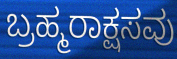
ಬ್ರಹ್ಮರಾಕ್ಷಸವು